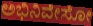
ಅಭಿನಿವೇಸೋ